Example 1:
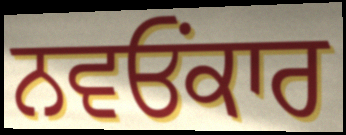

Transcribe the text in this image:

ਨਵਓਂਕਾਰ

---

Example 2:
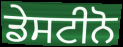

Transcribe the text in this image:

ਡੇਸਟੀਨੋ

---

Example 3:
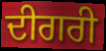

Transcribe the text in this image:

ਦੀਗਰੀ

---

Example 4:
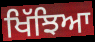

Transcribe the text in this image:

ਖਿੱਝਿਆ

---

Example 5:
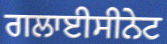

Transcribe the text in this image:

ਗਲਾਈਸੀਨੇਟ